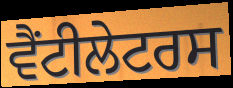
ਵੈਂਟੀਲੇਟਰਸ